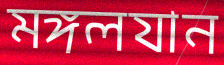
মঙ্গলযান